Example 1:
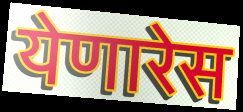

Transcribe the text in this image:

येणारेस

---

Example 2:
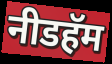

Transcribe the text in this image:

नीडहॅम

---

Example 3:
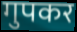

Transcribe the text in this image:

गुपकर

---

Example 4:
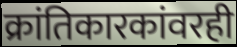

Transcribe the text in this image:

क्रांतिकारकांवरही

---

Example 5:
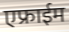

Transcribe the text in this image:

एफ्राईम